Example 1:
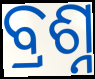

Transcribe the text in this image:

ବ୍ରଶ୍ନ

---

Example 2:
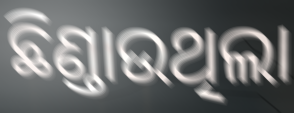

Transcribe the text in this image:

ଛିଣ୍ଡାଉଥିଲା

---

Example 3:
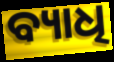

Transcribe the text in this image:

ବ୍ୟାଧି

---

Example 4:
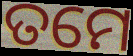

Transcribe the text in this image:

ତମେ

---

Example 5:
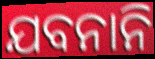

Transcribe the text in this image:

ଯବନାନି